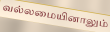
வல்லமையினாலும்